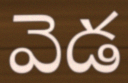
వెడ